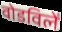
वोडविलें